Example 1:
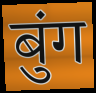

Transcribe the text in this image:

बुंग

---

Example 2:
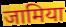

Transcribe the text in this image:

जामिया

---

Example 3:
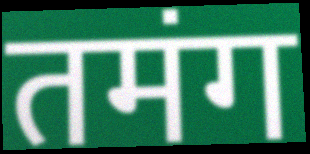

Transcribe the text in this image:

तमंग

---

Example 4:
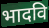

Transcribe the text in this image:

भादवि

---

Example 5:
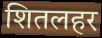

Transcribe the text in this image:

शितलहर